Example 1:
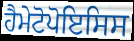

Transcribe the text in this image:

ਹੈਮੇਟੋਪੋਇਸਿਸ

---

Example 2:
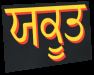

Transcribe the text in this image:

ਯਕੂਤ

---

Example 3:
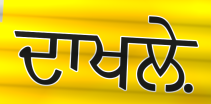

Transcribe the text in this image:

ਦਾਖਲ਼ੇ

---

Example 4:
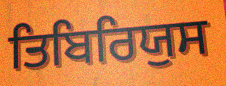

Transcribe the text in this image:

ਤਿਬਿਰਿਯੁਸ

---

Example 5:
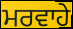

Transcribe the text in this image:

ਮਰਵਾਹੇ